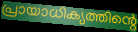
പ്രായാധിക്യത്തിന്റെ